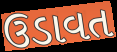
ઉડાવત